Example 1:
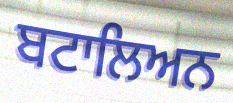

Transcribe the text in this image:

ਬਟਾਲਿਅਨ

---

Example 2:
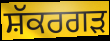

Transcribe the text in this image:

ਸ਼ੱਕਰਗੜ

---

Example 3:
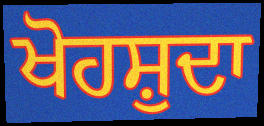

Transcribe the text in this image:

ਖੋਹਸ਼ੁਦਾ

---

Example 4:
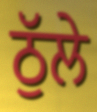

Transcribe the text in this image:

ਠੁੱਲੇ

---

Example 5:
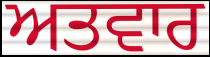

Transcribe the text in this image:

ਅਤਵਾਰ